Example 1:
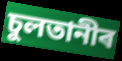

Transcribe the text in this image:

চুলতানীৰ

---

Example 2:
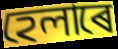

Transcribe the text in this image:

হেলাৰে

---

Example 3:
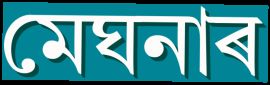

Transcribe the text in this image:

মেঘনাৰ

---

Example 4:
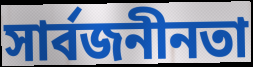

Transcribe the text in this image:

সাৰ্বজনীনতা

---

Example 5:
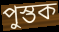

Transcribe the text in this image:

পুস্তক